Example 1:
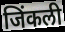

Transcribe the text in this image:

जिंकली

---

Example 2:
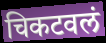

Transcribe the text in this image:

चिकटवलं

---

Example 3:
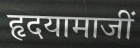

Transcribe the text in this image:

हृदयामाजीं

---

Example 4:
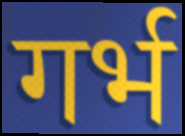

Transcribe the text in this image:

गर्भ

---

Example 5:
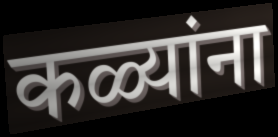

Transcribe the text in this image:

कळ्यांना